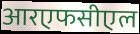
आरएफसीएल